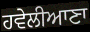
ਹਵੇਲੀਆਣਾ